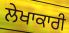
ਲੇਖਾਕਾਰੀ